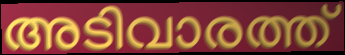
അടിവാരത്ത്